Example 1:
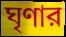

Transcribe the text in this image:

ঘৃণার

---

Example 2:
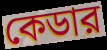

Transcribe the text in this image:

কেডার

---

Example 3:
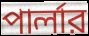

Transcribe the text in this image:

পার্লার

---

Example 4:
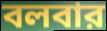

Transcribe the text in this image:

বলবার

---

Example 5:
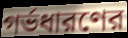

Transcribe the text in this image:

গর্ভধারণের